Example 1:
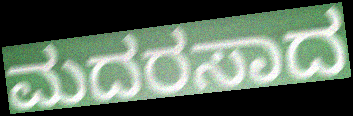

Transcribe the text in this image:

ಮದರಸಾದ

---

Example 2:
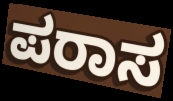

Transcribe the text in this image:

ಪರಾಸ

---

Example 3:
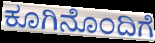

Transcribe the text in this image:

ಕೂಗಿನೊಂದಿಗೆ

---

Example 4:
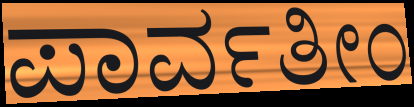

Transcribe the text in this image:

ಪಾರ್ವತೀಂ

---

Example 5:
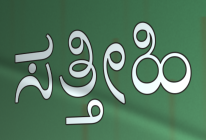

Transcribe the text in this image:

ಸತ್ತೀಹಿ